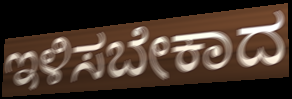
ಇಳಿಸಬೇಕಾದ